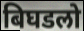
बिघडलो